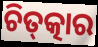
ଚିତ୍‌ତ୍କାର